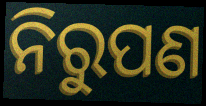
ନିରୁପଣ